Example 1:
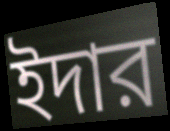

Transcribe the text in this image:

ইদার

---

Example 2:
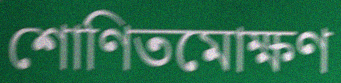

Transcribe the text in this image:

শোণিতমোক্ষণ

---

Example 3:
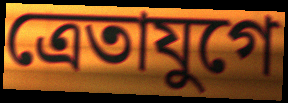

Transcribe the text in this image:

ত্রেতাযুগে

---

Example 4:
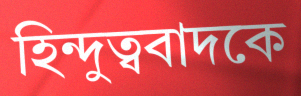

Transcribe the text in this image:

হিন্দুত্ববাদকে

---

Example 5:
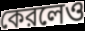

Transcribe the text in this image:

কেরলেও